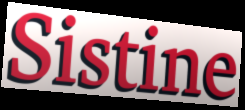
Sistine